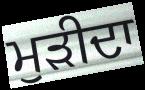
ਮੁੜੀਦਾ